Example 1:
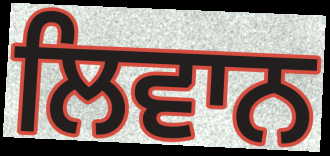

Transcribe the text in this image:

ਲਿਵਾਨ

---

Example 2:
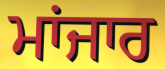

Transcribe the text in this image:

ਮਾਂਜਾਰ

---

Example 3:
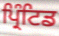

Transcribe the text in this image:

ਪ੍ਰਿੰਟਿਡ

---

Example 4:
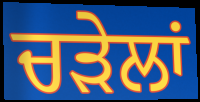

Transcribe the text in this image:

ਚੜੇਲਾਂ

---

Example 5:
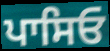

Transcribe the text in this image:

ਪਾਸਿਓ